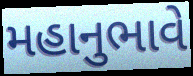
મહાનુભાવે